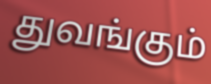
துவங்கும்